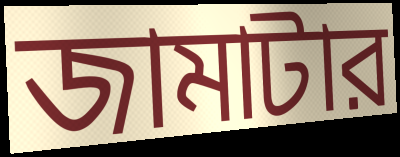
জামাটার